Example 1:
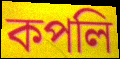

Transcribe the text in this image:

কপলি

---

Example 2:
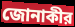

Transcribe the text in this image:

জোনাকীর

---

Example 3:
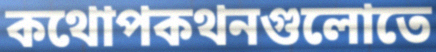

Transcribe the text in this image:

কথোপকথনগুলোতে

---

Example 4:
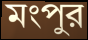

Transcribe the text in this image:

মংপুর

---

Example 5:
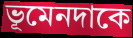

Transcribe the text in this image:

ভূমেনদাকে